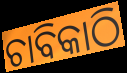
ଚାବିକାଠି